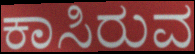
ಕಾಸಿರುವ